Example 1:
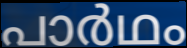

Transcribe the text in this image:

പാർഥം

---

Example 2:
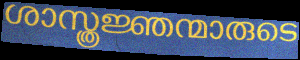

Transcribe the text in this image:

ശാസ്ത്രജ്ഞന്മാരുടെ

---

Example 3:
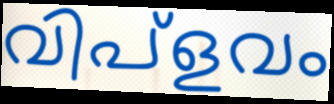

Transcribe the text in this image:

വിപ്ളവം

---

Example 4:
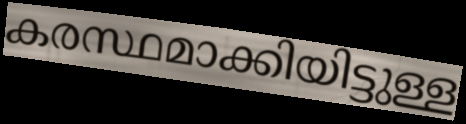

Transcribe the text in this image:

കരസ്ഥമാക്കിയിട്ടുള്ള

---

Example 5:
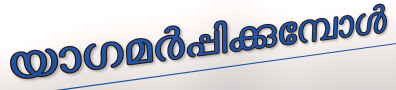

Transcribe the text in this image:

യാഗമർപ്പിക്കുമ്പോൾ